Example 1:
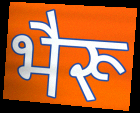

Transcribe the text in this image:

भैरू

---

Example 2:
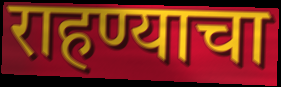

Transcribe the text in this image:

राहण्याचा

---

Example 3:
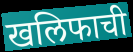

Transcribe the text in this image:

खलिफाची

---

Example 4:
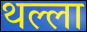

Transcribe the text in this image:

थल्ला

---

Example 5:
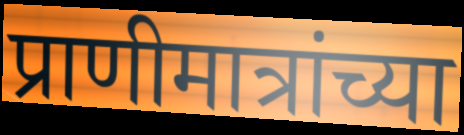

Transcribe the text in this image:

प्राणीमात्रांच्या